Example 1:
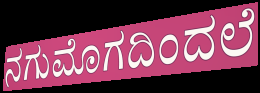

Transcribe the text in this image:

ನಗುಮೊಗದಿಂದಲೆ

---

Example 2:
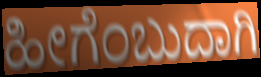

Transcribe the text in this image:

ಹೀಗೆಂಬುದಾಗಿ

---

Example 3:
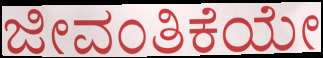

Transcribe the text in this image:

ಜೀವಂತಿಕೆಯೇ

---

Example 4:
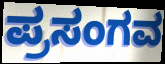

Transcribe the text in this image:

ಪ್ರಸಂಗವ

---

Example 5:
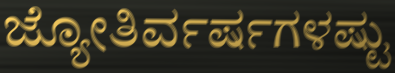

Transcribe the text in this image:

ಜ್ಯೋತಿರ್ವರ್ಷಗಳಷ್ಟು